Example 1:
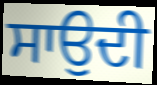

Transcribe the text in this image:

ਸਾਉਦੀ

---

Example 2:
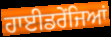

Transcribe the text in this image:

ਹਾਈਡਰੇਂਜਿਆਂ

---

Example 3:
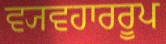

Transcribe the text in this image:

ਵ੍ਯਵਹਾਰਰੂਪ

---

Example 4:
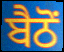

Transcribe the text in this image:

ਬੈਠੋਂ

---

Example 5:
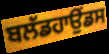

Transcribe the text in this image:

ਬਲੱਡਹਾਉਂਡਸ